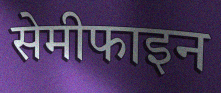
सेमीफाइन